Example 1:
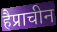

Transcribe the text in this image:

हैप्राचीन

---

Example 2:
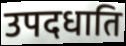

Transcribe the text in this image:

उपदधाति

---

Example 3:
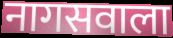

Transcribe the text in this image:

नागसवाला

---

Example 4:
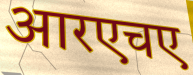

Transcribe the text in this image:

आरएचए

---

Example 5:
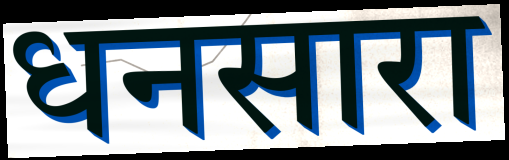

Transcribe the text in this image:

धनसारा